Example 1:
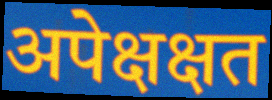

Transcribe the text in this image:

अपेक्षक्षत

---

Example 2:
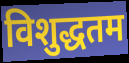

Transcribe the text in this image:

विशुद्धतम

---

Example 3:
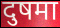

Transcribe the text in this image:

दुषमा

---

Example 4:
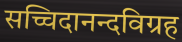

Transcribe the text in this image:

सच्चिदानन्दविग्रह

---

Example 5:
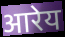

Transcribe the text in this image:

आरेय